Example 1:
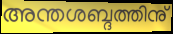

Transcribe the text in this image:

അന്തശബ്ദത്തിനു്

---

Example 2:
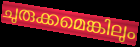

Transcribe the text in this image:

ചുരുക്കമെങ്കിലും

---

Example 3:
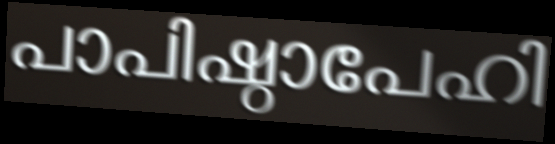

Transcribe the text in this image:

പാപിഷ്ഠാപേഹി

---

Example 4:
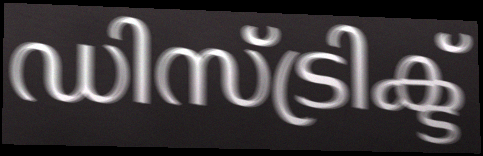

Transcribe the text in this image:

ഡിസ്ട്രിക്ട്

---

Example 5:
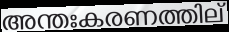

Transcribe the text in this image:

അന്തഃകരണത്തില്